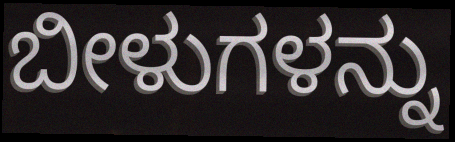
ಬೀಳುಗಳನ್ನು